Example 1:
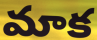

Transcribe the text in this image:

మాక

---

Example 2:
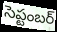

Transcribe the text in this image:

సెప్టంబర్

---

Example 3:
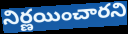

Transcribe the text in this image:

నిర్ణయించారని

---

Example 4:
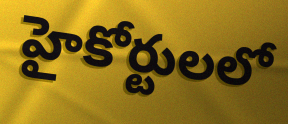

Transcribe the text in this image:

హైకోర్టులలో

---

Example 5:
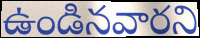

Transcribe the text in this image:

ఉండినవారని